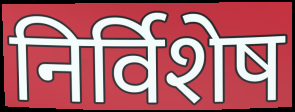
निर्विशेष